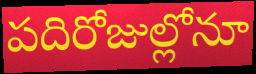
పదిరోజుల్లోనూ